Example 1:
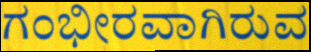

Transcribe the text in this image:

ಗಂಭೀರವಾಗಿರುವ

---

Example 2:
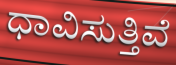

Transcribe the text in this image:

ಧಾವಿಸುತ್ತಿವೆ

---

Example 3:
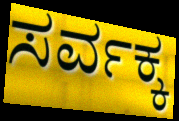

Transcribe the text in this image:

ಸರ್ವಕ್ಕ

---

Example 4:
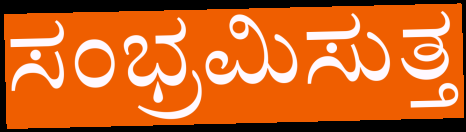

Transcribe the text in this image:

ಸಂಭ್ರಮಿಸುತ್ತ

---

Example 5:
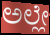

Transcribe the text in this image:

ಅಲ್ಲೇ